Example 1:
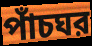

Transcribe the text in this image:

পাঁচঘর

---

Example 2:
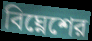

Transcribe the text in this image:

বিঘ্নেশের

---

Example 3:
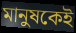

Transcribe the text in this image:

মানুষকেই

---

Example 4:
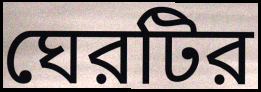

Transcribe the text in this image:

ঘেরটির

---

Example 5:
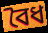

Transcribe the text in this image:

বৈধ